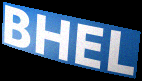
BHEL